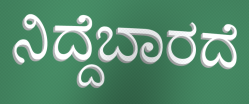
ನಿದ್ದೆಬಾರದೆ